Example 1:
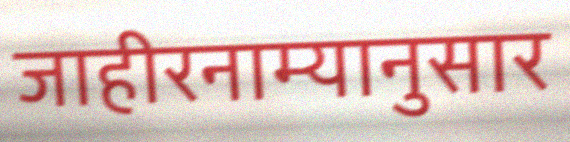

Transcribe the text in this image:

जाहीरनाम्यानुसार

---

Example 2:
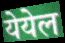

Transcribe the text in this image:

येयेल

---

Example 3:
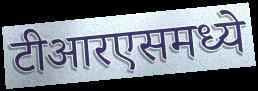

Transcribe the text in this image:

टीआरएसमध्ये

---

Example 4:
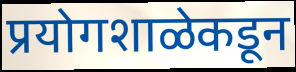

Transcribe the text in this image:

प्रयोगशाळेकडून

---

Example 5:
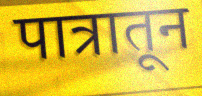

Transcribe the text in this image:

पात्रातून